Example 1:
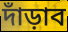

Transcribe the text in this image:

দাঁড়াব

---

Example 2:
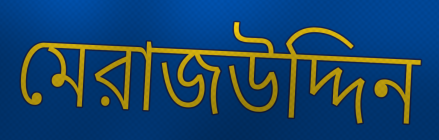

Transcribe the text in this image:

মেরাজউদ্দিন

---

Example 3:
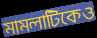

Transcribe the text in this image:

মামলাটিকেও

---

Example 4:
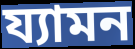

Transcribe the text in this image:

য্যামন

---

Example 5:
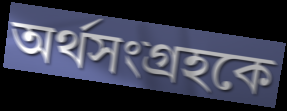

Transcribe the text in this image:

অর্থসংগ্রহকে